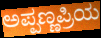
ಅಪ್ಪಣ್ಣಪ್ರಿಯ